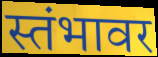
स्तंभावर